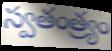
స్వతంత్ర్యం